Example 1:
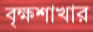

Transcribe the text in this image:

বৃক্ষশাখার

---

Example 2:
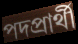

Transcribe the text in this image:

পদপ্রার্থী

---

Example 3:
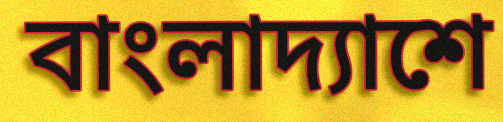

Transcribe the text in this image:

বাংলাদ্যাশে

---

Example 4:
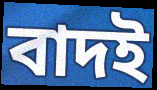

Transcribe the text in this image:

বাদই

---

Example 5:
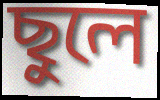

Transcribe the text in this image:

ছুলে